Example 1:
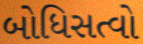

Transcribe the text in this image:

બોધિસત્વો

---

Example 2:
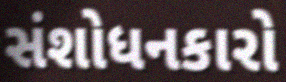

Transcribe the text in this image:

સંશોધનકારો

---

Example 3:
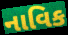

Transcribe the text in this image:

નાવિક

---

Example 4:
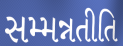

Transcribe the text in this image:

સમ્મન્નતીતિ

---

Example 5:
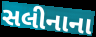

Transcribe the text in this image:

સલીનાના